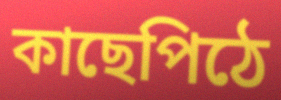
কাছেপিঠে